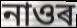
নাওৰ